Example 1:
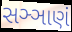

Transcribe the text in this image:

સઞ્ઞાણં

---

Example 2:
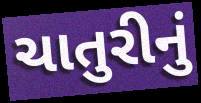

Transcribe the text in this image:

ચાતુરીનું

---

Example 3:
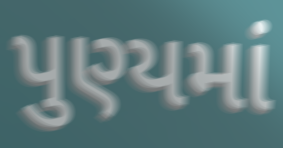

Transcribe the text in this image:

પુણ્યમાં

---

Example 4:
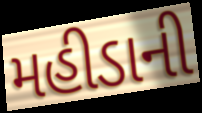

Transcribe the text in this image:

મહીડાની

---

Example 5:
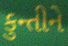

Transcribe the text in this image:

કુન્તીને